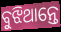
ବୁଝିଥାନ୍ତେ